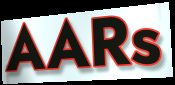
AARs